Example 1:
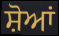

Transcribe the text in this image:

ਸ਼ੋਆਂ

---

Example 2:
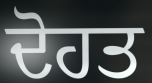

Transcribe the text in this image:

ਦੋਹਤ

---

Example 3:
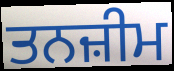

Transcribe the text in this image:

ਤਨਜ਼ੀਮ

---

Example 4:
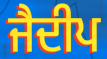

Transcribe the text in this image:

ਜੈਦੀਪ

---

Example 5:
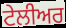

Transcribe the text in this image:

ਟੇਲੀਅਰ